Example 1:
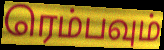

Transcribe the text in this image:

ரெம்பவும்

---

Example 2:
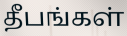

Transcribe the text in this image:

தீபங்கள்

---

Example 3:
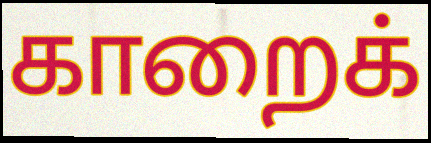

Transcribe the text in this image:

காறைக்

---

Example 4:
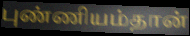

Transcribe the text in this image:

புண்ணியம்தான்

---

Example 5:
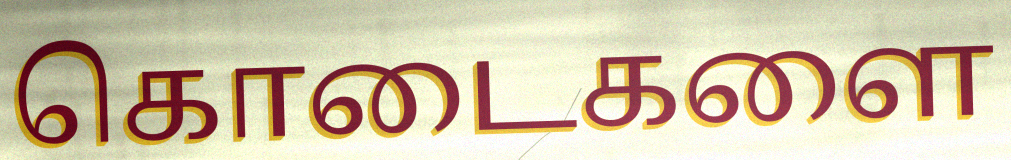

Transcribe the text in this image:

கொடைகளை